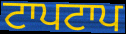
ਟਾਪਟਾਪ